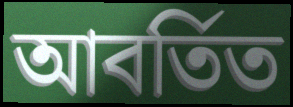
আবর্তিত